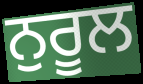
ਨੁਰੂਲ